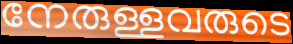
നേരുള്ളവരുടെ